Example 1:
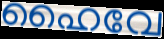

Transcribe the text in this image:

ഹൈവേ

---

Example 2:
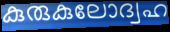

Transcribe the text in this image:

കുരുകുലോദ്വഹ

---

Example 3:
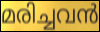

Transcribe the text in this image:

മരിച്ചവൻ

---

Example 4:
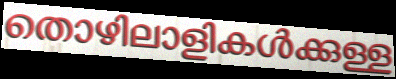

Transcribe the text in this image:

തൊഴിലാളികൾക്കുള്ള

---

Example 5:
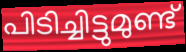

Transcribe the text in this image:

പിടിച്ചിട്ടുമുണ്ട്